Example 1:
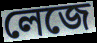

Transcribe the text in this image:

লেজে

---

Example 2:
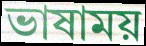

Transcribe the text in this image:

ভাষাময়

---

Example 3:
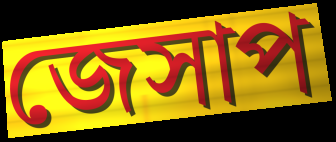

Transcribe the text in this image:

জেসাপ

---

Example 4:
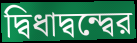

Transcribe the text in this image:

দ্বিধাদ্বন্দ্বের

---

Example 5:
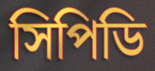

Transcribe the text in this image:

সিপিডি